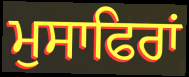
ਮੁਸਾਫਿਰਾਂ